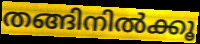
തങ്ങിനിൽക്കൂ